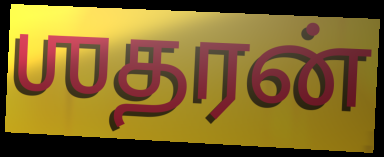
ஶதரன்